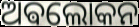
ଅଵଲୋକନ